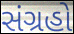
સંગ્રહો